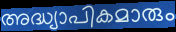
അദ്ധ്യാപികമാരും